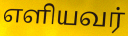
எளியவர்